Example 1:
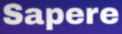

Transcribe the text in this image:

Sapere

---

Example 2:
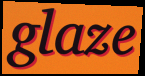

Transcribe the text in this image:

glaze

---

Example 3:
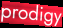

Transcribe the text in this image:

prodigy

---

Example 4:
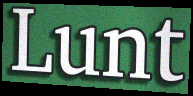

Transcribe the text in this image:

Lunt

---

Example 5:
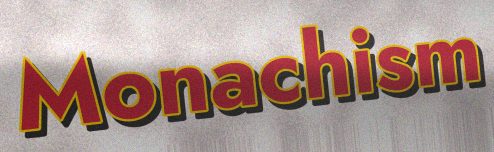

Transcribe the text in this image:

Monachism